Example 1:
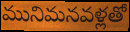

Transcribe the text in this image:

మునిమనవళ్లతో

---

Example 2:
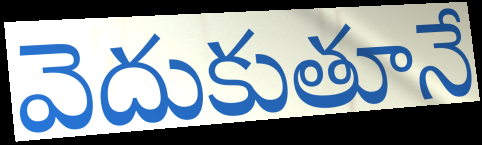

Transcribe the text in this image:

వెదుకుతూనే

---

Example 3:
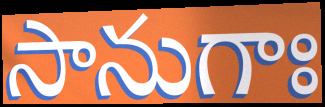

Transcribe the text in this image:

సానుగాః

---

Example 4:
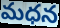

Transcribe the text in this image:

మధన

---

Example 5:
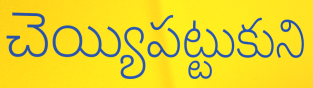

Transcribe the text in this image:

చెయ్యిపట్టుకుని